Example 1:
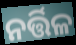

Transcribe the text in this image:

ନର୍ତ୍ତିଳ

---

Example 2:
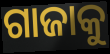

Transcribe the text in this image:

ଗାଜାକୁ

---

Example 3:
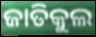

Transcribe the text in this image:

ଜାତିକୁଲ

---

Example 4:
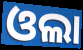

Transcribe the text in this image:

ଓଲା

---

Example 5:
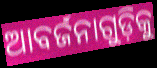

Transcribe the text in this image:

ଆବର୍ଜନାଗୁଡ଼ିକୁ